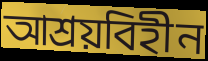
আশ্রয়বিহীন